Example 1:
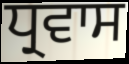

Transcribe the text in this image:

ਧ੍ਰਵਾਸ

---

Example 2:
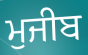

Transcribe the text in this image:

ਮੁਜੀਬ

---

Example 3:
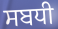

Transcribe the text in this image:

ਸਬਧੀ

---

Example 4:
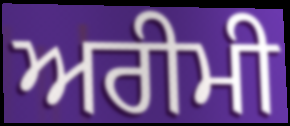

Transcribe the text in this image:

ਅਰੀਮੀ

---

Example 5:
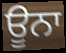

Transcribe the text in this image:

ਊਨਾ